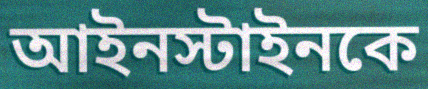
আইনস্টাইনকে